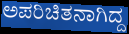
ಅಪರಿಚಿತನಾಗಿದ್ದ